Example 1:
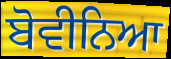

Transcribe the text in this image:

ਬੋਵੀਨਿਆ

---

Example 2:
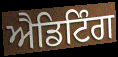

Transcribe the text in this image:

ਐਡਿਟਿੰਗ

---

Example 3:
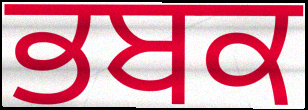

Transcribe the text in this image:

ਭਬਕ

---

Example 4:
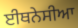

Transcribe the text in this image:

ਈਥਨੇਸੀਆ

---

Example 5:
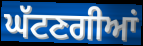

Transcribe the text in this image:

ਘੱਟਣਗੀਆਂ